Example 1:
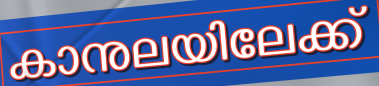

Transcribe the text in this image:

കാനുലയിലേക്ക്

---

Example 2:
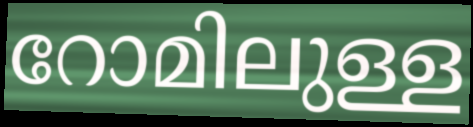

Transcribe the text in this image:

റോമിലുള്ള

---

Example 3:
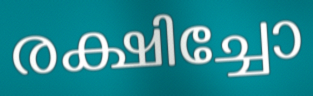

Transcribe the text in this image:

രക്ഷിച്ചോ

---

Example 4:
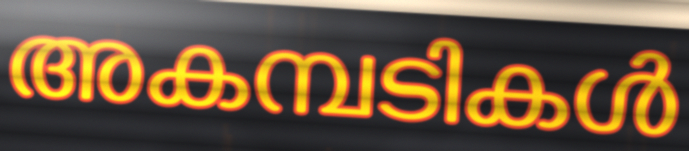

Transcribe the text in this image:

അകമ്പടികൾ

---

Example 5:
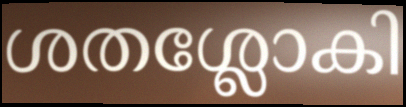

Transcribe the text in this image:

ശതശ്ലോകി